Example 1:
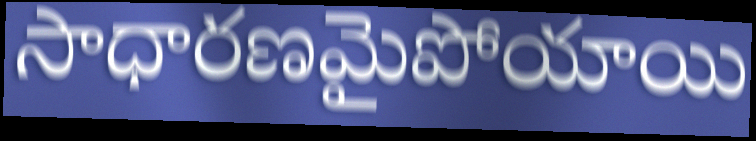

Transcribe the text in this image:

సాధారణమైపోయాయి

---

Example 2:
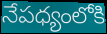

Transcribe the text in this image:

నేపధ్యంలోకి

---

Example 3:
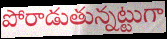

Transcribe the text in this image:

పోరాడుతున్నట్టుగా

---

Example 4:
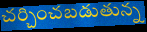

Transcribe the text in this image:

చర్చించబడుతున్న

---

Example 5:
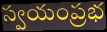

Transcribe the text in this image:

స్వయంప్రభ